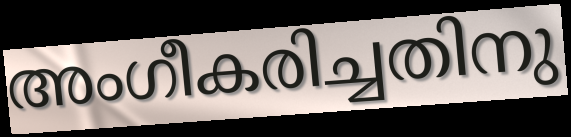
അംഗീകരിച്ചതിനു